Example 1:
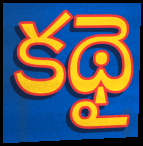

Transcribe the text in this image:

కథై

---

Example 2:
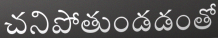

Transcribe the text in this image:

చనిపోతుండడంతో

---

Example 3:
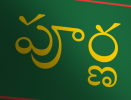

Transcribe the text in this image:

పూర్ణ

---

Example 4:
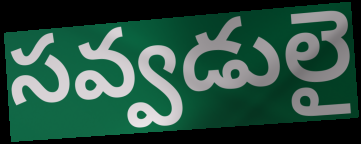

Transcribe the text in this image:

సవ్వడులై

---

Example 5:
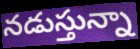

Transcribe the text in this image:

నడుస్తున్నా